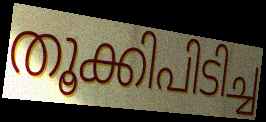
തൂക്കിപിടിച്ച